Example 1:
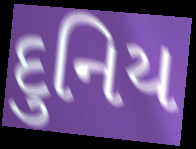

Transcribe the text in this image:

દુનિય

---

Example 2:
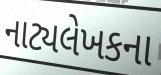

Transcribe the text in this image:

નાટ્યલેખકના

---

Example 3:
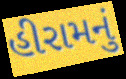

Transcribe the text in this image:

હીરામનું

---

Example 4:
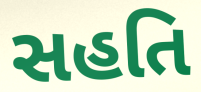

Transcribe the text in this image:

સહતિ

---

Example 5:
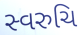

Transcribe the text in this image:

સ્વરુચિ